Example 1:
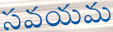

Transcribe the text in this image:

సవయమ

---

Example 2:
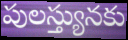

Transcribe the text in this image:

పులస్త్యునకు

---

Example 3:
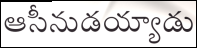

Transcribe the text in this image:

ఆసీనుడయ్యాడు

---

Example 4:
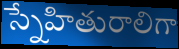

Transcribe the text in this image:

స్నేహితురాలిగా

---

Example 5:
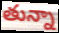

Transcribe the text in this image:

తున్నా